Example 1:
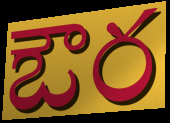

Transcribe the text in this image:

ఔర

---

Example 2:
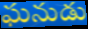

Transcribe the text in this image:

ఘనుడు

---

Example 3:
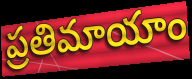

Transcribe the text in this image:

ప్రతిమాయాం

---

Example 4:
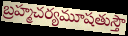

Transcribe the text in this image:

బ్రహ్మచర్యమూషతుస్తౌ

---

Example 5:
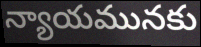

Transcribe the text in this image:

న్యాయమునకు